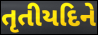
તૃતીયદિને